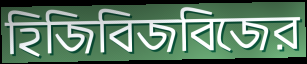
হিজিবিজবিজের